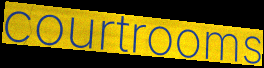
courtrooms